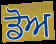
ਡੋਅ